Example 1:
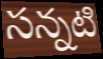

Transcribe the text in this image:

సన్నటి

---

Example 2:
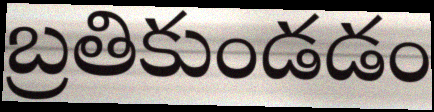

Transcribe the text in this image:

బ్రతికుండడం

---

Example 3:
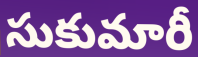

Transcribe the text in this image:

సుకుమారీ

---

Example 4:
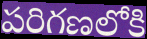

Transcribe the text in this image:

పరిగణలోకి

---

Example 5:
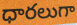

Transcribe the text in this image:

ధారలుగా